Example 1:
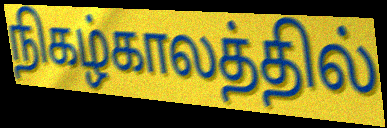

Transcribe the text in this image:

நிகழ்காலத்தில்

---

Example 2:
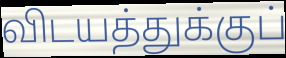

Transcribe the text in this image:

விடயத்துக்குப்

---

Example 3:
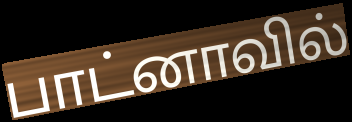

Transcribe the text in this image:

பாட்னாவில்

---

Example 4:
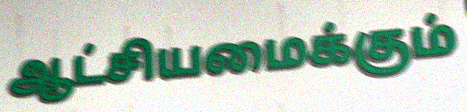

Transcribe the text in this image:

ஆட்சியமைக்கும்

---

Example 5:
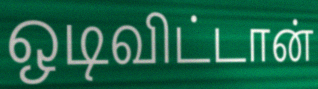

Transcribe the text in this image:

ஒடிவிட்டான்